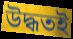
উদ্ধতই